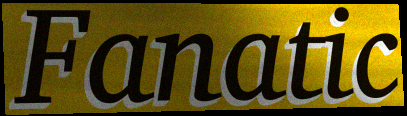
Fanatic